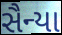
સૈન્યા